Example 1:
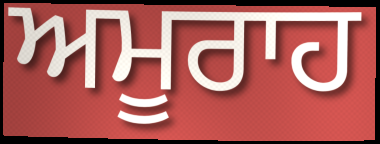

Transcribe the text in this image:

ਅਮੂਰਾਹ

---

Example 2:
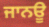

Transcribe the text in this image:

ਜਾਨਊ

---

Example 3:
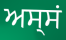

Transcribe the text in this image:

ਅਸ੍ਸਂ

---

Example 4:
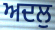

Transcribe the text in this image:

ਅਦਲੁ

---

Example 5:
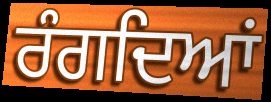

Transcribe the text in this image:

ਰੰਗਦਿਆਂ